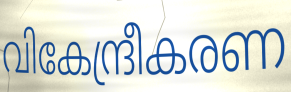
വികേന്ദ്രീകരണ